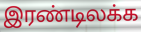
இரண்டிலக்க